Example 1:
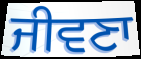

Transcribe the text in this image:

ਜੀਵਣਾ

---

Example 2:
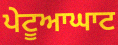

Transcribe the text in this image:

ਪੇਟੂਆਘਾਟ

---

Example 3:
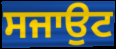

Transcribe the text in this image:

ਸਜਾਉਟ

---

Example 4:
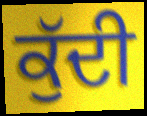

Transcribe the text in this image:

ਕੁੱਦੀ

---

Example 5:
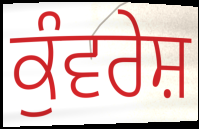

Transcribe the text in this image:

ਕੁੰਵਰੇਸ਼